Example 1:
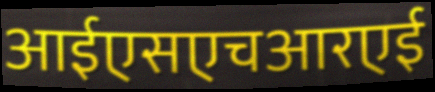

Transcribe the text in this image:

आईएसएचआरएई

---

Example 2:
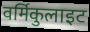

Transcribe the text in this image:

वर्मिकुलाइट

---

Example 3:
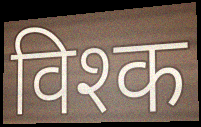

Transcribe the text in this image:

विश्क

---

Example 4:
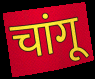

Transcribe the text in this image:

चांगू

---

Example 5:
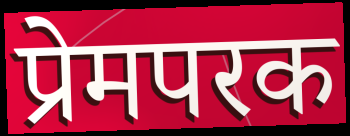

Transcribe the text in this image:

प्रेमपरक